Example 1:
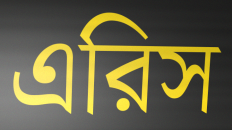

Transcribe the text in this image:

এরিস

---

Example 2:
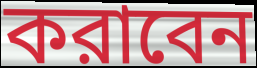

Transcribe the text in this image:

করাবেন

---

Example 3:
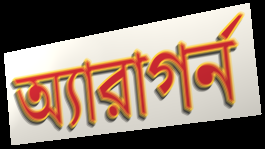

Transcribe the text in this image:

অ্যারাগর্ন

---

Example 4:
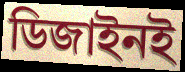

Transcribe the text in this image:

ডিজাইনই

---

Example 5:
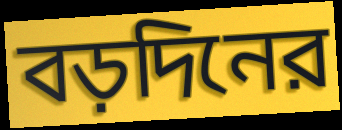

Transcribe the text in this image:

বড়দিনের